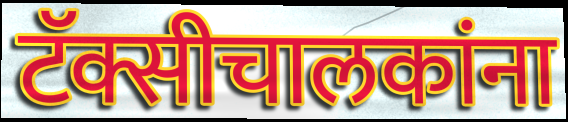
टॅक्सीचालकांना